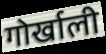
गोर्खाली